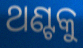
ଥଣ୍ଟକୁ